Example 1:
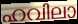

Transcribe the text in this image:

ഹവിലാ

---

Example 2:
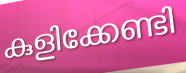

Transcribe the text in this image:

കുളിക്കേണ്ടി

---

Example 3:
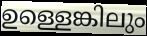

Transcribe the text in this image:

ഉള്ളെങ്കിലും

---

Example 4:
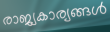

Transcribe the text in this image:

രാജ്യകാര്യങ്ങൾ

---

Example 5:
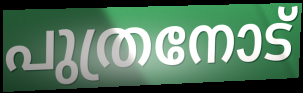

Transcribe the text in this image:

പുത്രനോട്